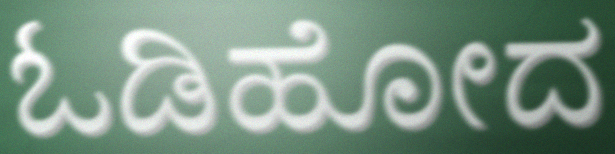
ಓಡಿಹೋದ